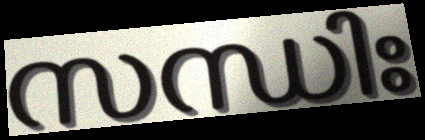
സന്ധിഃ